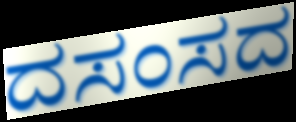
ದಸಂಸದ